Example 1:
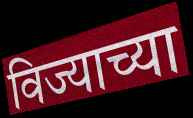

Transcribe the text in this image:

विज्याच्या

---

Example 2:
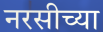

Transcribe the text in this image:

नरसीच्या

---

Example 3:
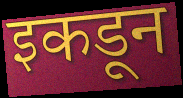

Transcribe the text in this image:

इकडून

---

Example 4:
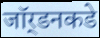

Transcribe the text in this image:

जॉर्डनकडे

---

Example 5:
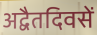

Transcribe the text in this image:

अद्वैतदिवसें